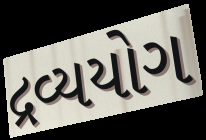
દ્રવ્યયોગ